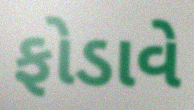
ફોડાવે